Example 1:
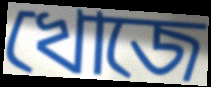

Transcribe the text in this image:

খোজে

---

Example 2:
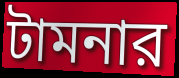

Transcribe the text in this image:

টামনার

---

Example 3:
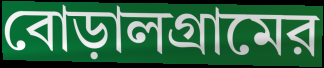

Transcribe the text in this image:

বোড়ালগ্রামের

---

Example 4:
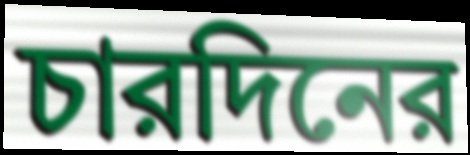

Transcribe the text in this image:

চারদিনের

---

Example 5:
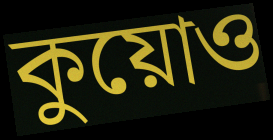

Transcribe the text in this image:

কুয়োও